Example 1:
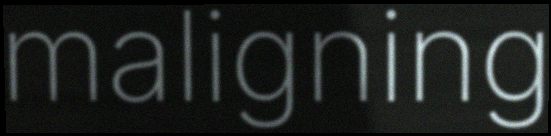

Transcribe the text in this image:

maligning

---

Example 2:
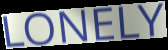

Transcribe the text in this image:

LONELY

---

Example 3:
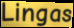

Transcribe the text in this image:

Lingas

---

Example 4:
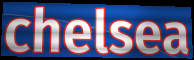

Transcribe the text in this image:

chelsea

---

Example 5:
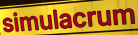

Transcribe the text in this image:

simulacrum